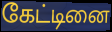
கேட்டினை